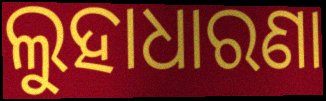
ଲୁହାଧାରଣା